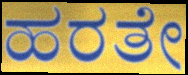
ಹರತೇ